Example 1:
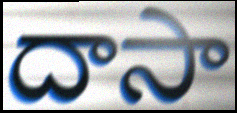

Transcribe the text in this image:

దాసా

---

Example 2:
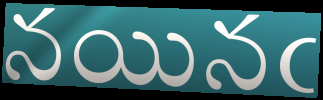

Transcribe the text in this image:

నయినఁ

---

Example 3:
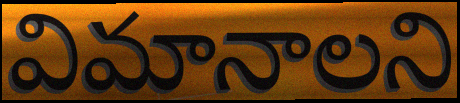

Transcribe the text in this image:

విమానాలని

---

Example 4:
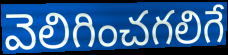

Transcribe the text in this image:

వెలిగించగలిగే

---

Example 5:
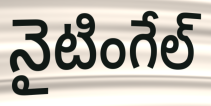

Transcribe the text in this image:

నైటింగేల్